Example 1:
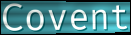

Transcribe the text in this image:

Covent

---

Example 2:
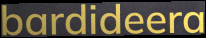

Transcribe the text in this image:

bardideera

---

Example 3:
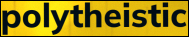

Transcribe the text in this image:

polytheistic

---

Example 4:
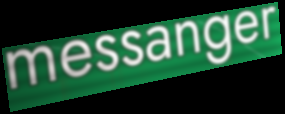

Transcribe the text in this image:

messanger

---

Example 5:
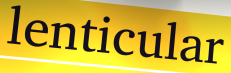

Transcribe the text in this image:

lenticular